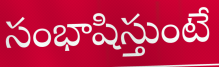
సంభాషిస్తుంటే